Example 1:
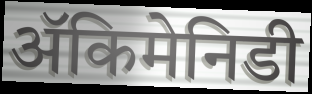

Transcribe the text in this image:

ॲकिमेनिडी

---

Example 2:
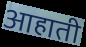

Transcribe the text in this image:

आहाती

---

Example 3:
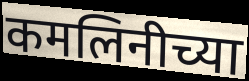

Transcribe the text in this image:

कमलिनीच्या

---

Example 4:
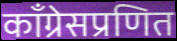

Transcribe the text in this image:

काँग्रेसप्रणित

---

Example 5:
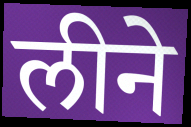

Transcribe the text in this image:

लीने